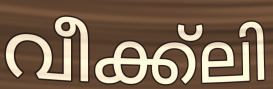
വീക്ക്ലി